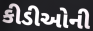
કીડીઓની